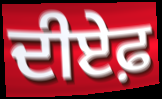
ਦੀਏਫ਼